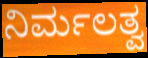
ನಿರ್ಮಲತ್ವ